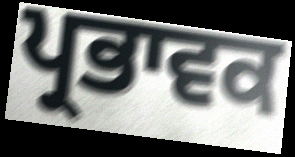
ਪ੍ਰਭਾਵਕ